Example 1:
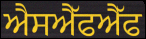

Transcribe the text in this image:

ਐਸਐੱਫਐੱਫ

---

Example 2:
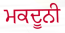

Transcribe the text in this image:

ਮਕਦੂਨੀ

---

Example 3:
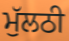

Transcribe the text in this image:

ਮੁੱਲਠੀ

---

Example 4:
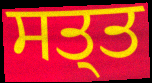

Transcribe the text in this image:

ਸਤ੍ਤ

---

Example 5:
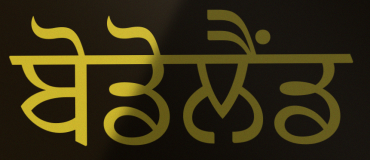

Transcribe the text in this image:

ਬੋਡੋਲੈਂਡ